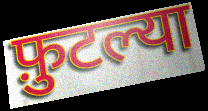
फ़ुटल्या